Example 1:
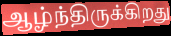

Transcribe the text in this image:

ஆழ்ந்திருக்கிறது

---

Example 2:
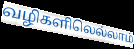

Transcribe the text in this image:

வழிகளிலெல்லாம்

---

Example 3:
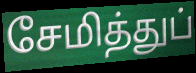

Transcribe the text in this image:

சேமித்துப்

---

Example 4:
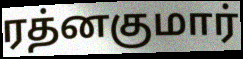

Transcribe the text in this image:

ரத்னகுமார்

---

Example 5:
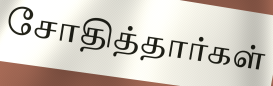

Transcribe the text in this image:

சோதித்தார்கள்